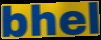
bhel